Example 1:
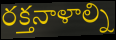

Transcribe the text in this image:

రక్తనాళాల్ని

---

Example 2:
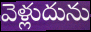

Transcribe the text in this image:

వెళ్లుదును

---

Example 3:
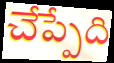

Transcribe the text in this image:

చేప్పేది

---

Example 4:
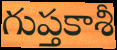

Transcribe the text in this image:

గుప్తకాశీ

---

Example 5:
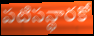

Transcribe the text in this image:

పటిసన్థారకో